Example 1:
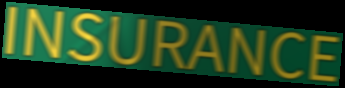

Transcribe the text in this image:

INSURANCE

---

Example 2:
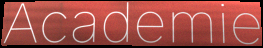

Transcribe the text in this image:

Academie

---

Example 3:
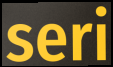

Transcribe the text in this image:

seri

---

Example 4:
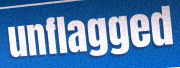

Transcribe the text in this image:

unflagged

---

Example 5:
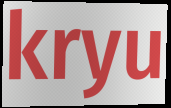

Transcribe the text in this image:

kryu